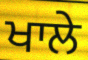
ਖਾਲੇ